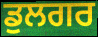
ਡੁਲਗਰ